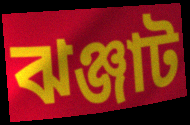
ঝঞ্জাট